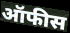
ऑफीस